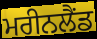
ਮਰੀਨਲੈਂਡ